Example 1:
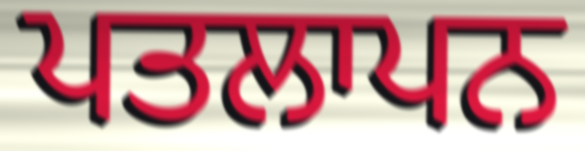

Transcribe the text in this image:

ਪਤਲਾਪਨ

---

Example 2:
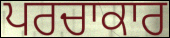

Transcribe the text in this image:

ਪਰਚਾਕਾਰ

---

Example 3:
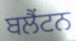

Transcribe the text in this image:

ਬਲੈਂਟਨ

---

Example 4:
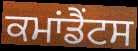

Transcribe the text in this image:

ਕਮਾਂਡੈਂਟਸ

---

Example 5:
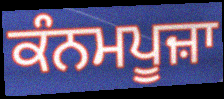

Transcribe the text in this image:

ਕੰਨਮਪੂਜ਼ਾ